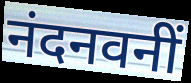
नंदनवनीं